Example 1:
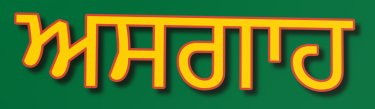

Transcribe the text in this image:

ਅਸਗਾਹ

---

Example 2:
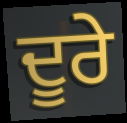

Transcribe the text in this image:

ਦੂਰੇ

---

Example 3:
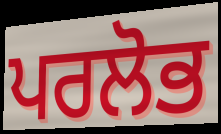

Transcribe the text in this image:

ਪਰਲੋਭ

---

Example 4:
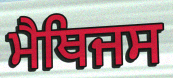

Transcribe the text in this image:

ਮੈਥਿਜਸ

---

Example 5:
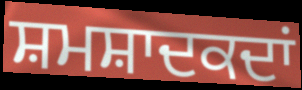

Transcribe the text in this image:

ਸ਼ਮਸ਼ਾਦਕਦਾਂ